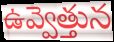
ఉవ్వెత్తున